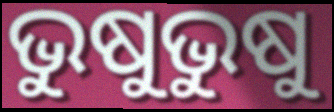
ଭୁଷୁଭୁଷୁ